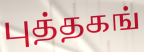
புத்தகங்